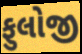
ફુલોજી